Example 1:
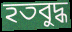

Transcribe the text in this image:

হতবুদ্ধ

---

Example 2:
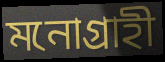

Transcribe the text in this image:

মনোগ্রাহী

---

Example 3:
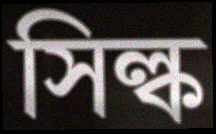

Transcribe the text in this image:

সিল্ক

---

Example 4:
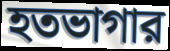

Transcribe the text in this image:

হতভাগার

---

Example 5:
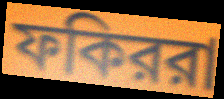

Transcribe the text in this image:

ফকিররা